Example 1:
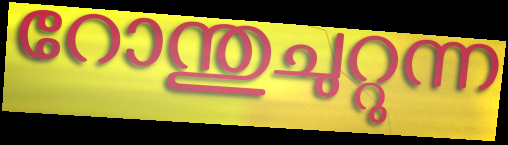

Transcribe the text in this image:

റോന്തുചുറ്റുന്ന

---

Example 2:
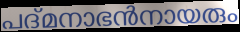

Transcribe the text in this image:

പദ്മനാഭൻനായരും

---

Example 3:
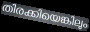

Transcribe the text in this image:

തിരക്കിയെങ്കിലും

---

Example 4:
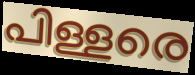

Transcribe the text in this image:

പിള്ളരെ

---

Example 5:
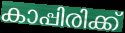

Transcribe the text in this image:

കാപ്പിരിക്ക്